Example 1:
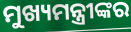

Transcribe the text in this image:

ମୁଖ୍ୟମନ୍ତ୍ରୀଙ୍କର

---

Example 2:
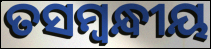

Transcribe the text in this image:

ତସମ୍ବନ୍ଧୀୟ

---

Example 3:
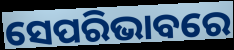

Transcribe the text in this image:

ସେପରିଭାବରେ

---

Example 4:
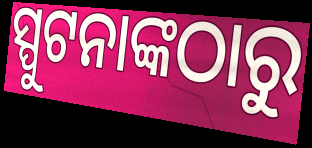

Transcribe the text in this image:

ସ୍ପୁଟନାଙ୍କଠାରୁ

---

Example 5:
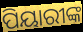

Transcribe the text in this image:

ପିୟାରୀଙ୍କ